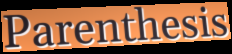
Parenthesis